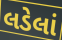
લડેલાં